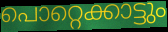
പൊറ്റെക്കാട്ടും